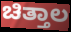
ಚಿತ್ತಾಲ